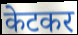
केटकर